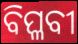
ବିପ୍ଳବୀ